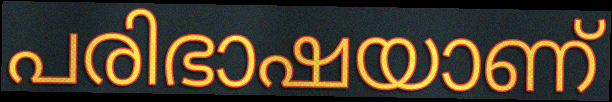
പരിഭാഷയാണ്